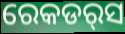
ରେକଡର୍‌ସ